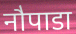
नौपाडा